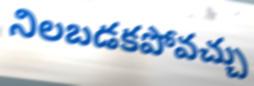
నిలబడకపోవచ్చు